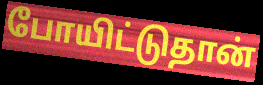
போயிட்டுதான்